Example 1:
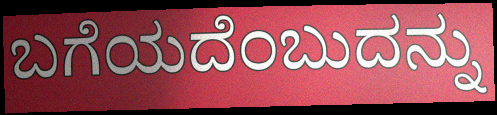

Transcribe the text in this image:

ಬಗೆಯದೆಂಬುದನ್ನು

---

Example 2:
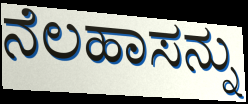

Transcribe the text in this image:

ನೆಲಹಾಸನ್ನು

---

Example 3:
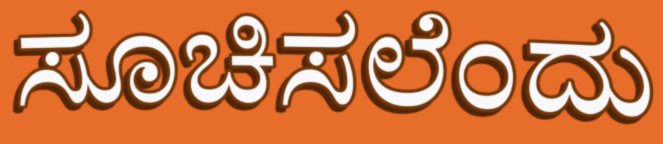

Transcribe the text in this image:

ಸೂಚಿಸಲೆಂದು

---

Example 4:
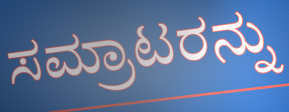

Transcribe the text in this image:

ಸಮ್ರಾಟರನ್ನು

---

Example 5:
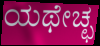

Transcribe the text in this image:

ಯಥೇಚ್ಛ